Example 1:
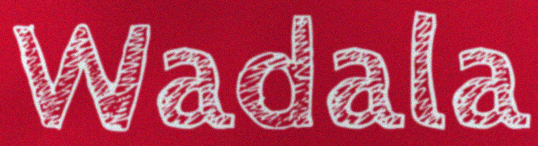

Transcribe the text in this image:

Wadala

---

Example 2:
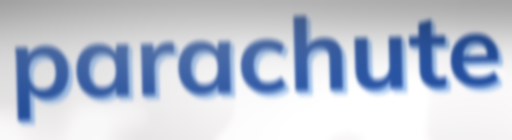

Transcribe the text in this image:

parachute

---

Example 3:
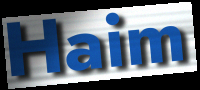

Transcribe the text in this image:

Haim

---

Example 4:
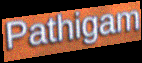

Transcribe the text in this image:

Pathigam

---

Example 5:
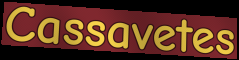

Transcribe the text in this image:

Cassavetes